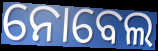
ନୋବେଲ